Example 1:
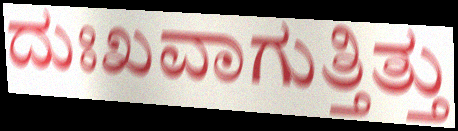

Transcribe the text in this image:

ದುಃಖವಾಗುತ್ತಿತ್ತು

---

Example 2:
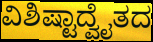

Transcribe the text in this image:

ವಿಶಿಷ್ಟಾದ್ವೈತದ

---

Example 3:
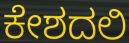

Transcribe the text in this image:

ಕೇಶದಲಿ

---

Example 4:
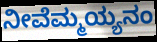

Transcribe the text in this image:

ನೀವೆಮ್ಮಯ್ಯನಂ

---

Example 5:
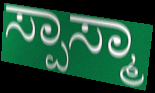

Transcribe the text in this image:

ಸ್ಪಾಸ್ಮಾ